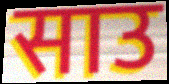
साउ